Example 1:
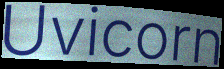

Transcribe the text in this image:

Uvicorn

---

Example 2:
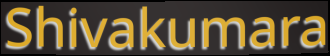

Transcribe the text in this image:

Shivakumara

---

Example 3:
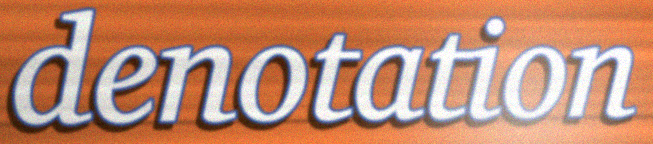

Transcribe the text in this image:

denotation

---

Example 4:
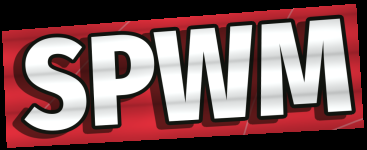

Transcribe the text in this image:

SPWM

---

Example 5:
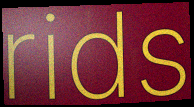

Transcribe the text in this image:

rids